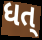
ધત્